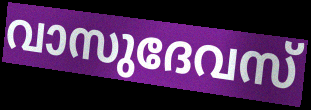
വാസുദേവസ്